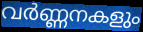
വർണ്ണനകളും